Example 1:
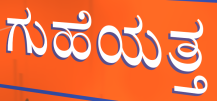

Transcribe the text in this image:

ಗುಹೆಯತ್ತ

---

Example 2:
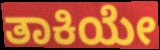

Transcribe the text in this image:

ತಾಕಿಯೇ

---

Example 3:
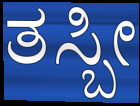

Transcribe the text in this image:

ತಸ್ಬೀ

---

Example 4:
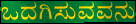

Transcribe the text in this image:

ಒದಗಿಸುವವನು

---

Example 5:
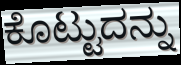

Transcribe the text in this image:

ಕೊಟ್ಟುದನ್ನು